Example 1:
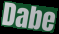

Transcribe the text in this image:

Dabe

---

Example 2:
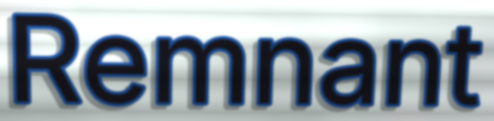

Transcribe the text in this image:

Remnant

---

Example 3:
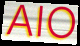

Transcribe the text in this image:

AIO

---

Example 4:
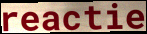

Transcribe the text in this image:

reactie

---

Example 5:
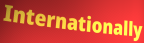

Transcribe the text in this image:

Internationally